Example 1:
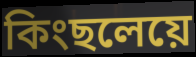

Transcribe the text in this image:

কিংছলেয়ে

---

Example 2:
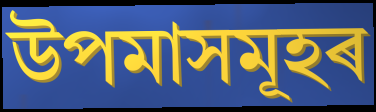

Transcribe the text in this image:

উপমাসমূহৰ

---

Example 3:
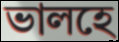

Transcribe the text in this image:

ভালহে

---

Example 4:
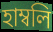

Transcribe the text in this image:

হাম্বলি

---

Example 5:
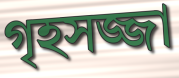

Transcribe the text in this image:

গৃহসজ্জা